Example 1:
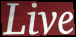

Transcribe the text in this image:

Live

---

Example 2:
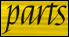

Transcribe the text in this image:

parts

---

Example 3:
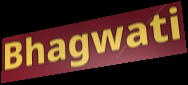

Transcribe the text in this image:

Bhagwati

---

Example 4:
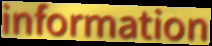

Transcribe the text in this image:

information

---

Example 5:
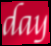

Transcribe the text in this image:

day